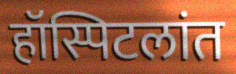
हॉस्पिटलांत